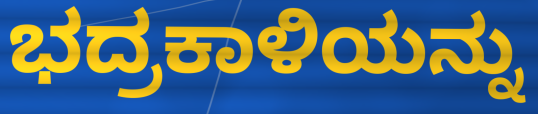
ಭದ್ರಕಾಳಿಯನ್ನು